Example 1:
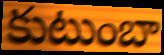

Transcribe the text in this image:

కుటుంబా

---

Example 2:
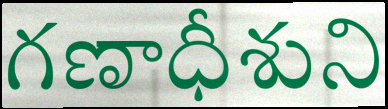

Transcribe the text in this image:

గణాధీశుని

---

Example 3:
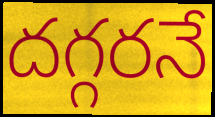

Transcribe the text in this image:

దగ్గరనే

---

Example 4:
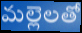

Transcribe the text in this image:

మల్లెలతో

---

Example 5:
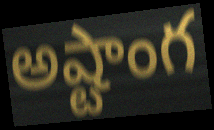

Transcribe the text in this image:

అష్టాంగ